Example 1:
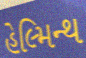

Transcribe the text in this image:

હેલ્મિન્થ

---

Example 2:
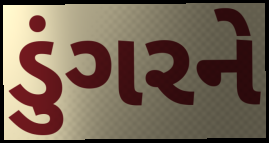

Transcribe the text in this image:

ડુંગરને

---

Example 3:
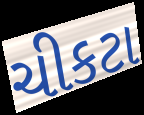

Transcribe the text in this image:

ચીકટા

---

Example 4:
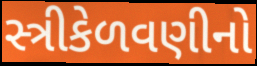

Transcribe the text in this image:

સ્ત્રીકેળવણીનો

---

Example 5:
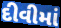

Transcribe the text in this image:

દીવીમાં